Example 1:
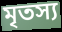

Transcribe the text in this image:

মৃতস্য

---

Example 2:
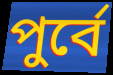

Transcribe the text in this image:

পুর্বে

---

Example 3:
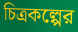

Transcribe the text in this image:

চিত্রকল্পের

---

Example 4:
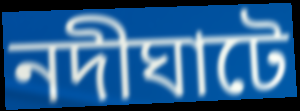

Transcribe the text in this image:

নদীঘাটে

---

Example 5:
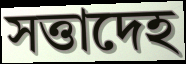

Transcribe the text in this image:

সত্তাদেহ